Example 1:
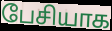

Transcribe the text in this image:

பேசியாக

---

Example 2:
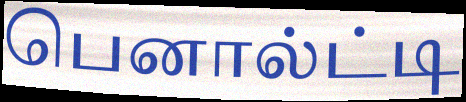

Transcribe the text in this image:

பெனால்ட்டி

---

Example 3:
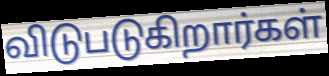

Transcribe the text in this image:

விடுபடுகிறார்கள்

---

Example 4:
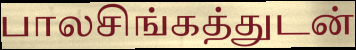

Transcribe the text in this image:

பாலசிங்கத்துடன்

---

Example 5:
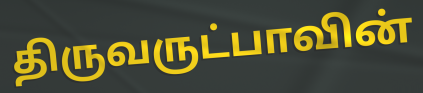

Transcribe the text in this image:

திருவருட்பாவின்